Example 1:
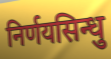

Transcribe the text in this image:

निर्णयसिन्धु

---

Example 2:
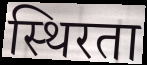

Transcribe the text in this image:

स्थिरता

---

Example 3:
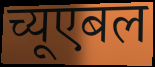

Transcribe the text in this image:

च्यूएबल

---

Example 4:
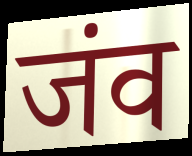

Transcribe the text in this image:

जंव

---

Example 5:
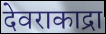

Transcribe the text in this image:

देवराकाद्रा